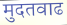
मुदतवाढ